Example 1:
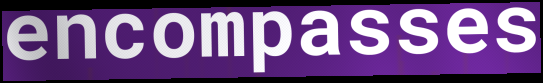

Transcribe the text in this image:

encompasses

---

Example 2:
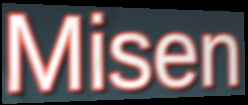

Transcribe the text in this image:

Misen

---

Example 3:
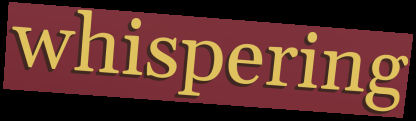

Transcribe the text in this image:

whispering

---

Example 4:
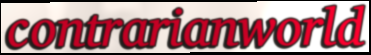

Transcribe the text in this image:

contrarianworld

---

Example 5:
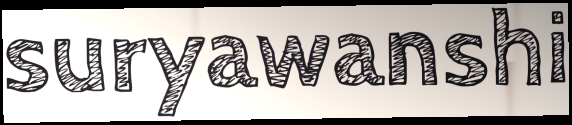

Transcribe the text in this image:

suryawanshi